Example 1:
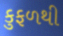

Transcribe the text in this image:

કુફળથી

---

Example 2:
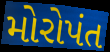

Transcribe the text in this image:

મોરોપંત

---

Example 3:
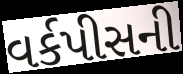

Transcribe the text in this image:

વર્કપીસની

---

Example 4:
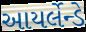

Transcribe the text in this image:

આયર્લેન્ડે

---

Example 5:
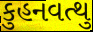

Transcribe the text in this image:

કુહનવત્થુ